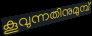
കൂവുന്നതിനുമുമ്പ്